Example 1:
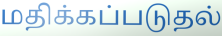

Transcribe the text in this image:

மதிக்கப்படுதல்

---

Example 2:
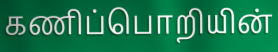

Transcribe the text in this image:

கணிப்பொறியின்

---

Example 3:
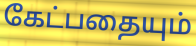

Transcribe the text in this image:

கேட்பதையும்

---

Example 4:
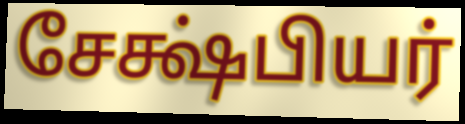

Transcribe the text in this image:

சேக்ஷ்பியர்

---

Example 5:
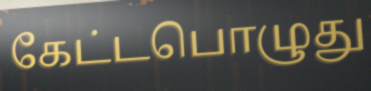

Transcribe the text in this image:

கேட்டபொழுது